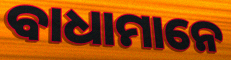
ବାଧାମାନେ